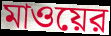
মাওয়ের